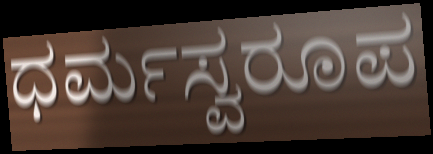
ಧರ್ಮಸ್ವರೂಪ